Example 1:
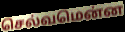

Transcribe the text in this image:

செல்வமென்ன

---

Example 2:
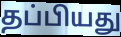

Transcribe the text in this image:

தப்பியது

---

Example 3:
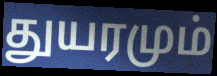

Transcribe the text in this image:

துயரமும்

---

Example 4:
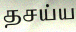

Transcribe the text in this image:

தசய்ய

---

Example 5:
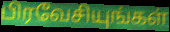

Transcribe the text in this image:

பிரவேசியுங்கள்